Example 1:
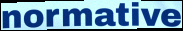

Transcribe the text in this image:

normative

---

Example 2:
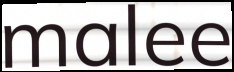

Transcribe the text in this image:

malee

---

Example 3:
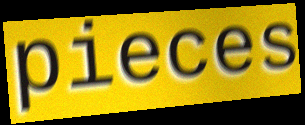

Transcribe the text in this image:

pieces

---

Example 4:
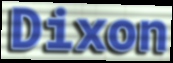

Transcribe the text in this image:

Dixon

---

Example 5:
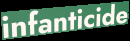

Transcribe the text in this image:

infanticide